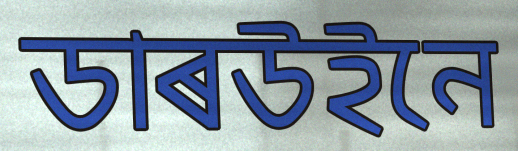
ডাৰউইনে